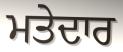
ਮਤੇਦਾਰ